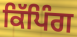
ਕਿੱਪਿੰਗ